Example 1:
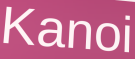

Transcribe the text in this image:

Kanoi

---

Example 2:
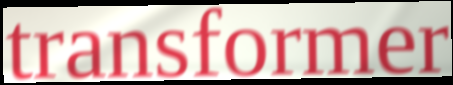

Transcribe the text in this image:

transformer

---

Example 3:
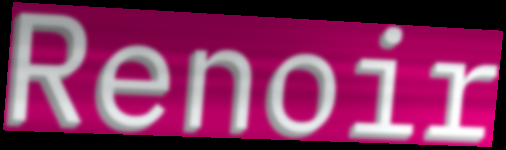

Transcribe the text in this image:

Renoir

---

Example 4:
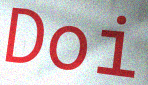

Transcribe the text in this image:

Doi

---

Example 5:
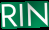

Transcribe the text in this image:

RIN